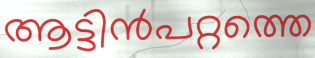
ആട്ടിൻപറ്റത്തെ